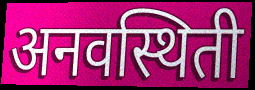
अनवस्थिती